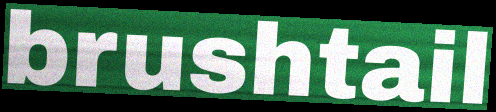
brushtail